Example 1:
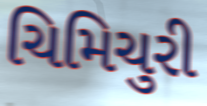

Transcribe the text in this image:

ચિમિચુરી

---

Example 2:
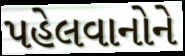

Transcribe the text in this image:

પહેલવાનોને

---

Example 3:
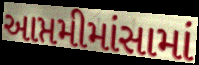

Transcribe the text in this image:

આપ્તમીમાંસામાં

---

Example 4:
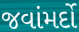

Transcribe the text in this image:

જવાંમર્દો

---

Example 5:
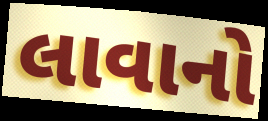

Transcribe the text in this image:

લાવાનો